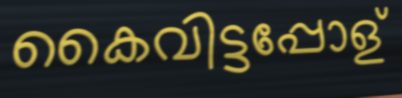
കൈവിട്ടപ്പോള്